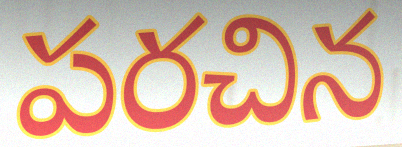
పరచిన